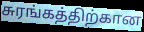
சுரங்கத்திற்கான